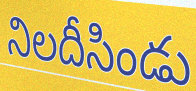
నిలదీసిండు